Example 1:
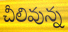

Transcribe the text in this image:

చీలివున్న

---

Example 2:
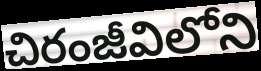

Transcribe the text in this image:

చిరంజీవిలోని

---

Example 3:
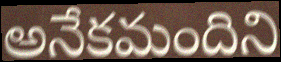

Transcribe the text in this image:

అనేకమందిని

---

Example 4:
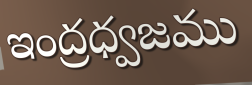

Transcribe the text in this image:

ఇంద్రధ్వజము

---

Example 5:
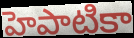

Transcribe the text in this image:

హెపాటికా